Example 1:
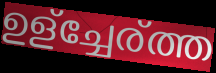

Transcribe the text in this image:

ഉള്ച്ചേര്ത്ത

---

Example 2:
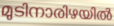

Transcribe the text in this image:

മുടിനാരിഴയിൽ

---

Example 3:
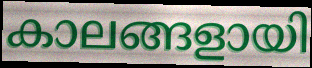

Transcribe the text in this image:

കാലങ്ങളായി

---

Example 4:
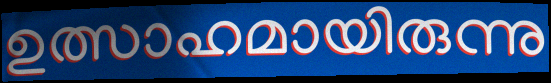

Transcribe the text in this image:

ഉത്സാഹമായിരുന്നു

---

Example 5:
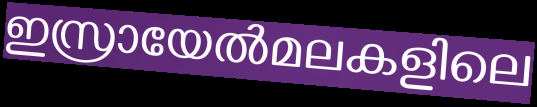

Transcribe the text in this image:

ഇസ്രായേൽമലകളിലെ